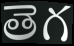
తెగ